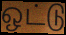
ஒட்டு